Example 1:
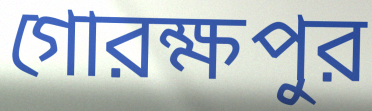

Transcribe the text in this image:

গোরক্ষপুর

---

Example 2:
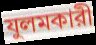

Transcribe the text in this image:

যুলমকারী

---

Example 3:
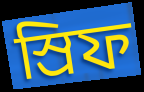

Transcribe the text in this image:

স্রিফ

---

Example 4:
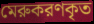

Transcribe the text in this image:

মেরুকরণকৃত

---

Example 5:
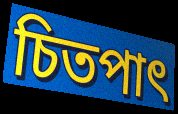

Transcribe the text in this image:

চিতপাৎ